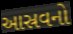
આસ્રવનો